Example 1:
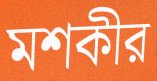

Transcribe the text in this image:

মশকীর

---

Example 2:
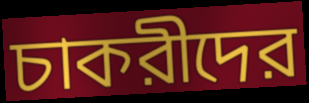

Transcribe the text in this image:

চাকরীদের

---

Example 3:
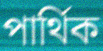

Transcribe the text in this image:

পার্থিক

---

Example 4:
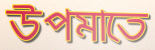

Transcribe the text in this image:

উপমাতে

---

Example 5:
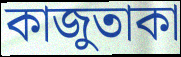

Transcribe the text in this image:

কাজুতাকা